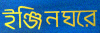
ইঞ্জিনঘরে